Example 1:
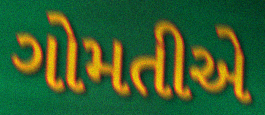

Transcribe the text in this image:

ગોમતીએ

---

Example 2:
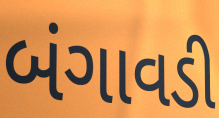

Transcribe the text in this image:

બંગાવડી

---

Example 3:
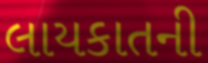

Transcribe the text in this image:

લાયકાતની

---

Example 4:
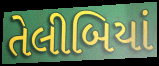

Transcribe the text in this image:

તેલીબિયાં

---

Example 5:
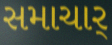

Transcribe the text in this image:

સમાચાર્